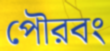
পৌরবং